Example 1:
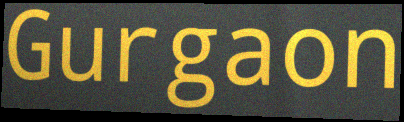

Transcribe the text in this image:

Gurgaon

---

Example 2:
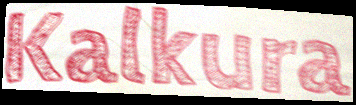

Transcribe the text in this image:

Kalkura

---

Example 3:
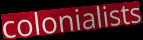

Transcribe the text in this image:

colonialists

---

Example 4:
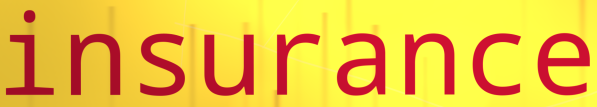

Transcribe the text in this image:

insurance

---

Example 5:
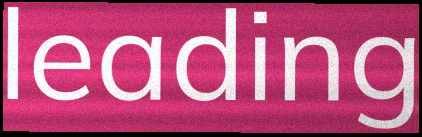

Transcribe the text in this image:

leading